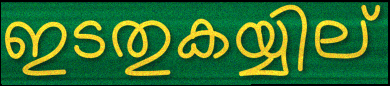
ഇടതുകയ്യില്